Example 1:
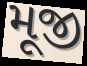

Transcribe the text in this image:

મૂજી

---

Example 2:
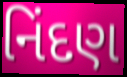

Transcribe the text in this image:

નિંદણ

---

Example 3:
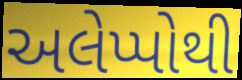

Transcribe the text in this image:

અલેપ્પોથી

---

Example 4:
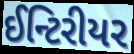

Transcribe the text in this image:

ઈન્ટિરીયર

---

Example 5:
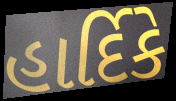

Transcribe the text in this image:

હાર્દિકે